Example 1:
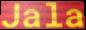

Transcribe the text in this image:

Jala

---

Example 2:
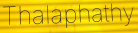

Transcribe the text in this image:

Thalaphathy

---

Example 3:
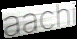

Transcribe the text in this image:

aachi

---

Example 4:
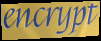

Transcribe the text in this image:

encrypt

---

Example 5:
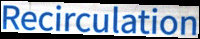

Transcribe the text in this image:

Recirculation